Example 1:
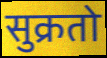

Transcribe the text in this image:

सुक्रतो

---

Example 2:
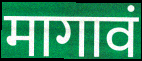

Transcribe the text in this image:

मागावं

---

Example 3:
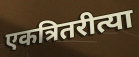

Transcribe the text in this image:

एकत्रितरीत्या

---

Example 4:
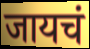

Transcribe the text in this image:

जायचं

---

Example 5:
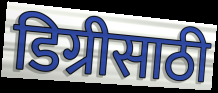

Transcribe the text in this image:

डिग्रीसाठी